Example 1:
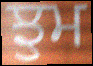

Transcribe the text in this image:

ਝੁਮ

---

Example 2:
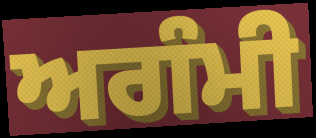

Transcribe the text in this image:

ਅਗੰਮੀ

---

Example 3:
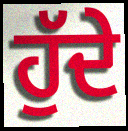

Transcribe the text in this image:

ਹੁੱਦੇ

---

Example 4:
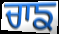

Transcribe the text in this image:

ਚਾਙ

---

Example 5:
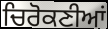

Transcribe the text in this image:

ਚਿਰੋਕਣੀਆਂ